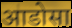
आडोसा